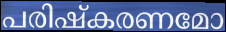
പരിഷ്കരണമോ